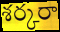
శర్కరా